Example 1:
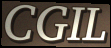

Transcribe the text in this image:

CGIL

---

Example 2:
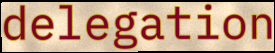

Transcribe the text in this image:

delegation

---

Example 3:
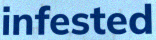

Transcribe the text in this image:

infested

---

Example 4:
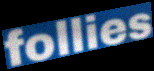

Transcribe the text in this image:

follies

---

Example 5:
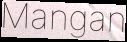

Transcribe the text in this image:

Mangan